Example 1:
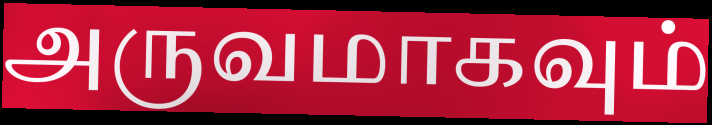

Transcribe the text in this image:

அருவமாகவும்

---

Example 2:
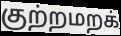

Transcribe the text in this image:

குற்றமறக்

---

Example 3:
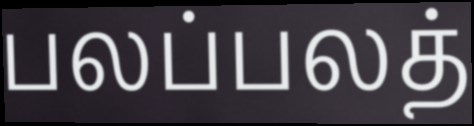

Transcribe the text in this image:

பலப்பலத்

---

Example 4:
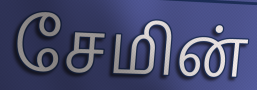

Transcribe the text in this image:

சேமின்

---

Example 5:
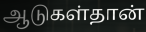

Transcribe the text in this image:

ஆடுகள்தான்